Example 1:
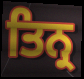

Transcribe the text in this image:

ਤਿਨ੍ਰ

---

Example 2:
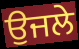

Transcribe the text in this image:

ਉਜਲੇ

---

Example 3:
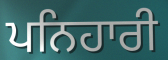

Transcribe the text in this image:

ਪਨਿਹਾਰੀ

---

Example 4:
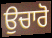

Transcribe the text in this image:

ਉਚਾਰੋ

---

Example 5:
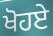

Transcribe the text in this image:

ਖੋਹਏ